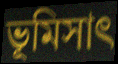
ভূমিসাৎ